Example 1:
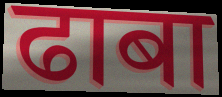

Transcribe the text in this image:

ढाबा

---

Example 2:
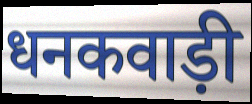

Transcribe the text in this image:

धनकवाड़ी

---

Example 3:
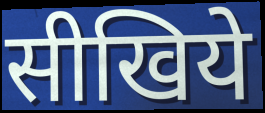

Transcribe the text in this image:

सीखिये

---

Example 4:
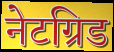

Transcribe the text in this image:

नेटग्रिड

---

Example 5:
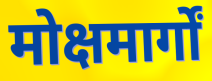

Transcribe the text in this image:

मोक्षमार्गों